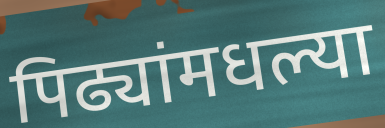
पिढ्यांमधल्या